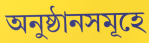
অনুষ্ঠানসমূহে